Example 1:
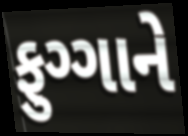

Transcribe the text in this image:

ફુગ્ગાને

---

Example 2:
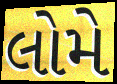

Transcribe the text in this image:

લોમે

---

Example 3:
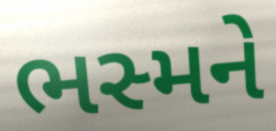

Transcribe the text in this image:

ભસ્મને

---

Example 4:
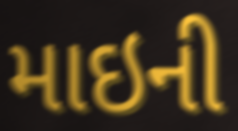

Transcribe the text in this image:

માઇની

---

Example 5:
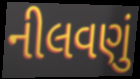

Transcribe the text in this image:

નીલવણું